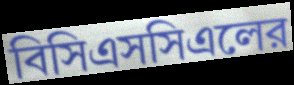
বিসিএসসিএলের